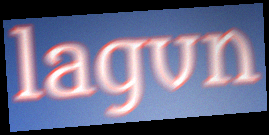
lagun